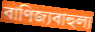
বাণিজ্যবাহুল্য